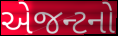
એજન્ટનો